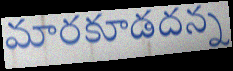
మారకూడదన్న